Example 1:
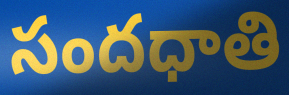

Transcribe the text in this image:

సందధాతి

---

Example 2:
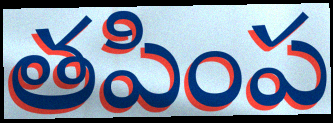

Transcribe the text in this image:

తపింప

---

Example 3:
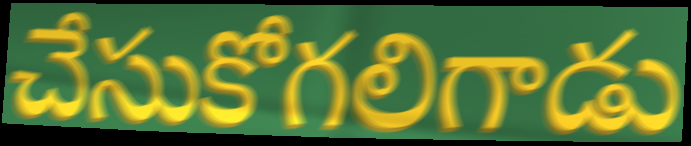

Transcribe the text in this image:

చేసుకోగలిగాడు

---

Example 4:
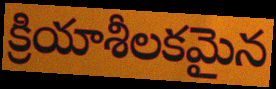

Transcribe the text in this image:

క్రియాశీలకమైన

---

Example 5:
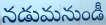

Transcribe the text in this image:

నడుమనుండీ